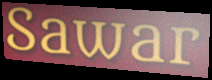
Sawar